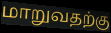
மாறுவதற்கு